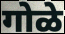
गोळे